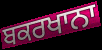
ਬਕਰਖਾਨਾ